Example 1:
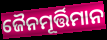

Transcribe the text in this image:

ଜୈନମୂର୍ତ୍ତିମାନ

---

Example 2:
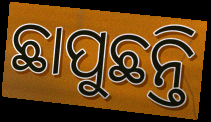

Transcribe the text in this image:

ଛାପୁଛନ୍ତି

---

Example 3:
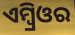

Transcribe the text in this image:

ଏମ୍ବ୍ରିଓର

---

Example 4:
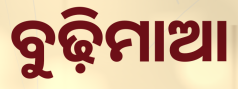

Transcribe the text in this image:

ବୁଢ଼ିମାଆ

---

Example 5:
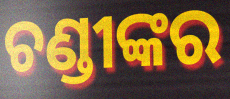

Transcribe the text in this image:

ଚଣ୍ଡୀଙ୍କର